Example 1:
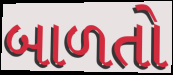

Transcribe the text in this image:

બાળતો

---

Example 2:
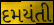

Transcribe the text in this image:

દમયંતી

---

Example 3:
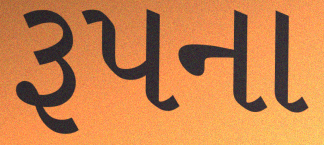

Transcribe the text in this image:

રૂપના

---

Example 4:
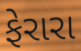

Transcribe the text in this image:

ફેરારા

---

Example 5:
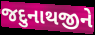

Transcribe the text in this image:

જદુનાથજીને